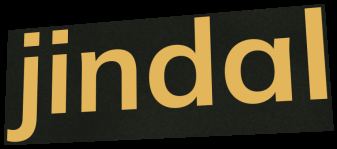
jindal